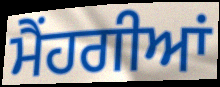
ਮੈਂਹਗੀਆਂ